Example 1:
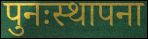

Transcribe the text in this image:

पुनःस्थापना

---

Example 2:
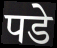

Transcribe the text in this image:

पडे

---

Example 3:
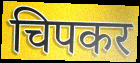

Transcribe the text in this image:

चिपकर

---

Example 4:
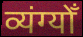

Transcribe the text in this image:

व्यंग्योँ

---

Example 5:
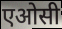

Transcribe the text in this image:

एओसी